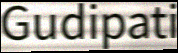
Gudipati